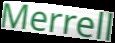
Merrell